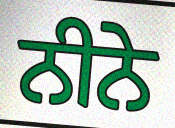
ਨੀਨੇ